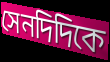
সেনদিদিকে